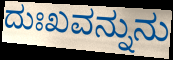
ದುಃಖವನ್ನುನು